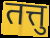
तत्तु